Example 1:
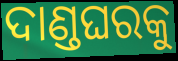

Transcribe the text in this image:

ଦାଣ୍ଡଘରକୁ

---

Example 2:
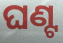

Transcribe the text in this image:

ଘଣ୍ଟ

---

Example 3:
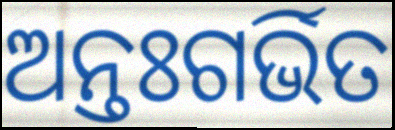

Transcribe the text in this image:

ଅନ୍ତଃଗର୍ଭିତ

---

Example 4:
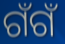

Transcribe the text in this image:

ଗଁଗଁ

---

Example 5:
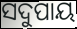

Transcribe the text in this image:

ସଦୁପାୟ